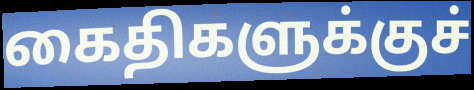
கைதிகளுக்குச்